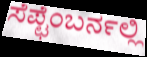
ಸೆಪ್ಟೆಂಬರ್ನಲ್ಲಿ